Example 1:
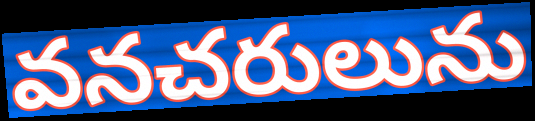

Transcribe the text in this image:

వనచరులును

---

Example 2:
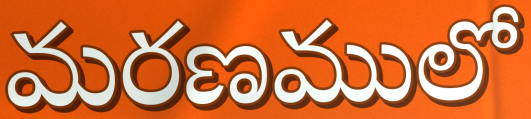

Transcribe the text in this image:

మరణములో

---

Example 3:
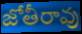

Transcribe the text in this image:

జోతీరావు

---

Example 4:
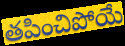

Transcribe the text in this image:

తపించిపోయే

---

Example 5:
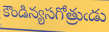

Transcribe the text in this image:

కౌండిన్యసగోత్రుఁడు